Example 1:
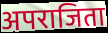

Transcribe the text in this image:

अपराजिता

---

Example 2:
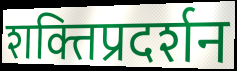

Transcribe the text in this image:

शक्तिप्रदर्शन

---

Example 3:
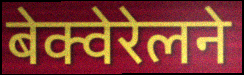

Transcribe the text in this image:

बेक्वेरेलने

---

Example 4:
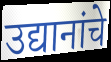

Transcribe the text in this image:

उद्यानांचे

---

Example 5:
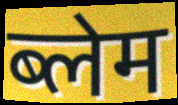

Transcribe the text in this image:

ब्लेम